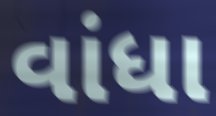
વાંધા